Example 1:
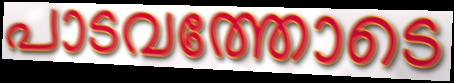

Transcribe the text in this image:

പാടവത്തോടെ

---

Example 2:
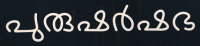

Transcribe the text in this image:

പുരുഷർഷഭ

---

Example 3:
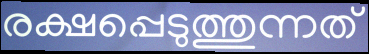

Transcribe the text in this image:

രക്ഷപ്പെടുത്തുന്നത്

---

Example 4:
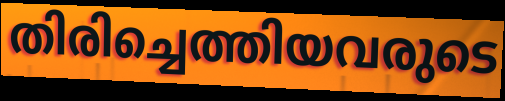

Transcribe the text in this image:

തിരിച്ചെത്തിയവരുടെ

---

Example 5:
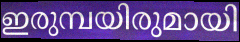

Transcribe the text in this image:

ഇരുമ്പയിരുമായി